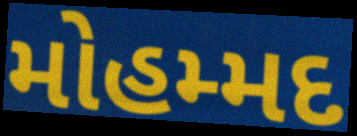
મોહમ્મદ